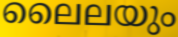
ലൈലയും